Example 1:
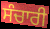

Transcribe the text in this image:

ਸੰਚਾਰੀ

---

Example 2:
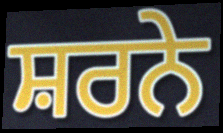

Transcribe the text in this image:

ਸ਼ਰਨੇ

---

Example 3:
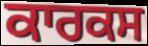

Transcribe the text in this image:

ਕਾਰਕਸ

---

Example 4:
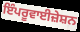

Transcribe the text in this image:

ਇੰਪਰੂਵਾਈਜ਼ੇਸ਼ਨ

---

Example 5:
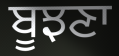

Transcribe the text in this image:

ਬੂਝਣਾ